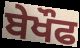
ਬੇਖੌਫ